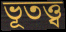
ভূতত্ত্ব